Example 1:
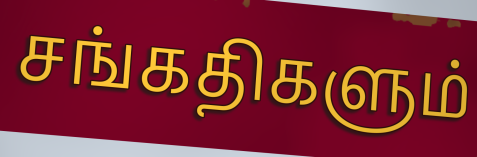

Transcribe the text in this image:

சங்கதிகளும்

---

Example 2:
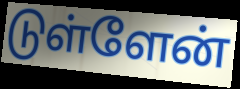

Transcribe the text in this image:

டுள்ளேன்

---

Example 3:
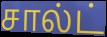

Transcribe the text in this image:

சால்ட்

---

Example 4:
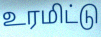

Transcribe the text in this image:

உரமிட்டு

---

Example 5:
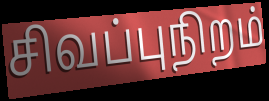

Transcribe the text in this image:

சிவப்புநிறம்